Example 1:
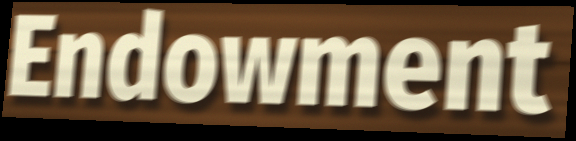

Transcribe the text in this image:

Endowment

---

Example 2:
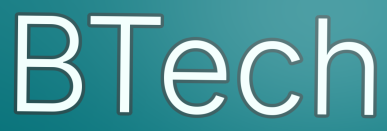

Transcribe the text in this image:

BTech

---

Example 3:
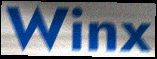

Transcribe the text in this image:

Winx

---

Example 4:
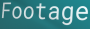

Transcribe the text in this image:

Footage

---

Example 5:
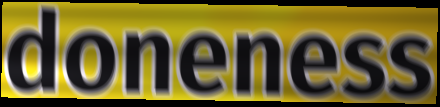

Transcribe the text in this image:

doneness